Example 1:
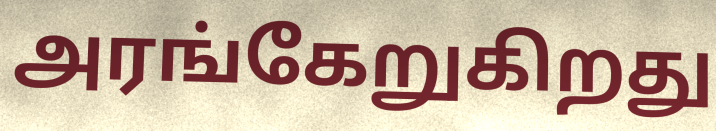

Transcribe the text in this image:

அரங்கேறுகிறது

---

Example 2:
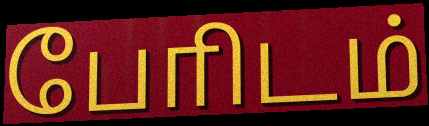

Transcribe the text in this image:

பேரிடம்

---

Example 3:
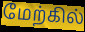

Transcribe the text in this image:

மேற்கில்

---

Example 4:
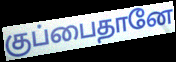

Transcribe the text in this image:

குப்பைதானே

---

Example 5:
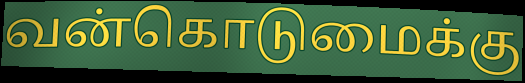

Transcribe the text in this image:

வன்கொடுமைக்கு